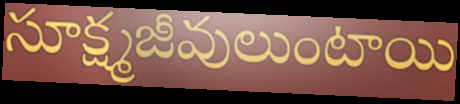
సూక్ష్మజీవులుంటాయి